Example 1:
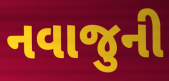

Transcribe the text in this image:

નવાજુની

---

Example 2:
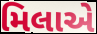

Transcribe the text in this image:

મિલાએ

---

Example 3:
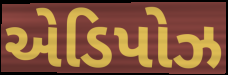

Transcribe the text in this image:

એડિપોઝ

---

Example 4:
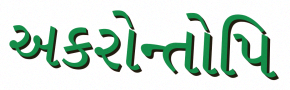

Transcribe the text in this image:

અકરોન્તોપિ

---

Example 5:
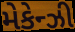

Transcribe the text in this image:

મેકેન્ઝી